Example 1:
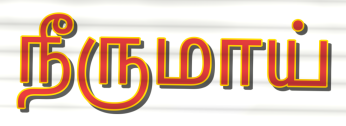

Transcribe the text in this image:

நீருமாய்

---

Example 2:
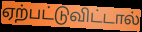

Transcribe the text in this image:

ஏற்பட்டுவிட்டால்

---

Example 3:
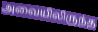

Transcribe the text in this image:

அவையிலிருந்த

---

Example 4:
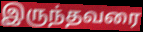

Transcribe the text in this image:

இருந்தவரை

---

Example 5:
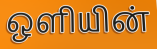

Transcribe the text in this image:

ஒளியின்